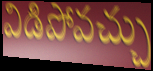
విడిపోవచ్చు